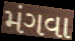
મંગવા